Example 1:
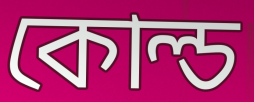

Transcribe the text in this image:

কোল্ড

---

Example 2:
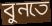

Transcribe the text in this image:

বুনতে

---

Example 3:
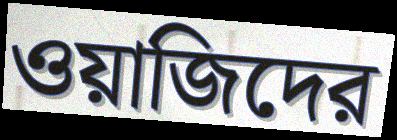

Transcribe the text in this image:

ওয়াজিদের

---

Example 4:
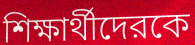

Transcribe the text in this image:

শিক্ষার্থীদেরকে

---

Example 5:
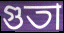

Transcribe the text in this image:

গুতা